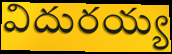
విదురయ్య